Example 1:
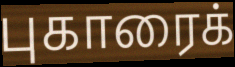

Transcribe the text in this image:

புகாரைக்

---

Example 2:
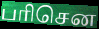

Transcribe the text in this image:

பரிசென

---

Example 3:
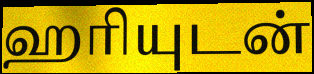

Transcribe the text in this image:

ஹரியுடன்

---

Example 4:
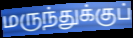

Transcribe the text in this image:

மருந்துக்குப்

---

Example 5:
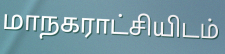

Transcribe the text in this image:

மாநகராட்சியிடம்